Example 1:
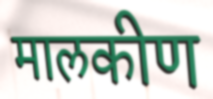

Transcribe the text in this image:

मालकीण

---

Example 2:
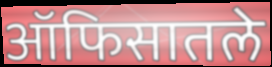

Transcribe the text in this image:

ऑफिसातले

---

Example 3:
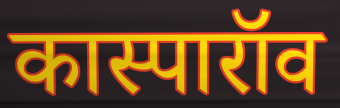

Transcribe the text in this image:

कास्पारॉव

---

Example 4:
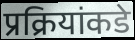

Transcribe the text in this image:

प्रक्रियांकडे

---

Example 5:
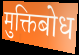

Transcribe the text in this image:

मुक्तिबोध